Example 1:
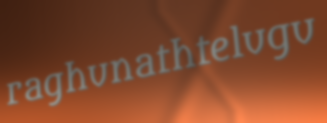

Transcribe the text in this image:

raghunathtelugu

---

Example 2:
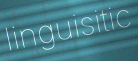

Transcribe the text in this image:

linguisitic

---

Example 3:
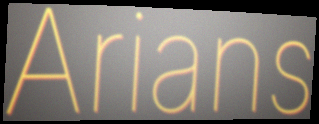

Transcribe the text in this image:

Arians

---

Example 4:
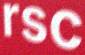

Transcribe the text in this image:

rsc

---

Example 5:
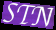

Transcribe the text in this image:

STN